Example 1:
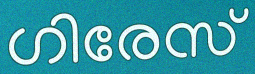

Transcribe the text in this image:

ഗിരേസ്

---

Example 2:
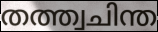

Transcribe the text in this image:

തത്ത്വചിന്ത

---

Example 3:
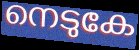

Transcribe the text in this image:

നെടുകേ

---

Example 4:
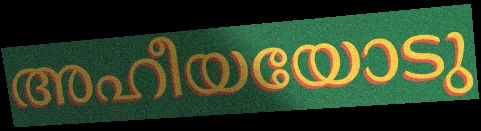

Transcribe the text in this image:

അഹീയയോടു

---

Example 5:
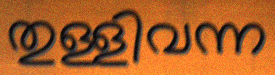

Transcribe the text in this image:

തുള്ളിവന്ന